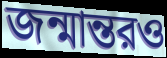
জন্মান্তরও